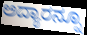
ಅದ್ಯಾರನ್ನೂ